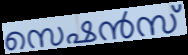
സെഷൻസ്